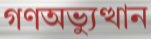
গণঅভ্যুত্থান